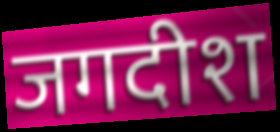
जगदीश